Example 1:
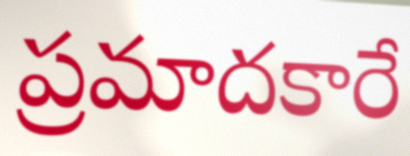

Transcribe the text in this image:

ప్రమాదకారే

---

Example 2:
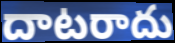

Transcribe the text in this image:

దాటరాదు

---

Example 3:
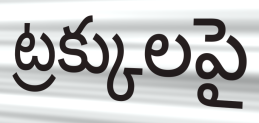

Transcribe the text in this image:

ట్రక్కులపై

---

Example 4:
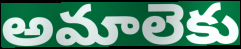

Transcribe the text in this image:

అమాలెకు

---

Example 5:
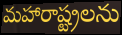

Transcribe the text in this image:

మహారాష్ట్రలను